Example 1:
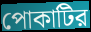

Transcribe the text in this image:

পোকাটির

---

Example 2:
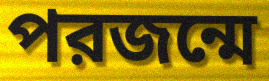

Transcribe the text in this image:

পরজন্মে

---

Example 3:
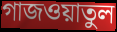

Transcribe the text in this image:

গাজওয়াতুল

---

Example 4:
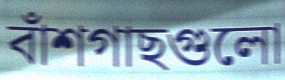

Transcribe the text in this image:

বাঁশগাছগুলো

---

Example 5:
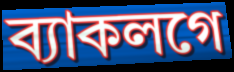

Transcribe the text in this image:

ব্যাকলগে